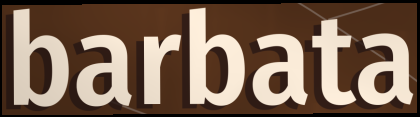
barbata